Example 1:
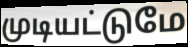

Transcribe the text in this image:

முடியட்டுமே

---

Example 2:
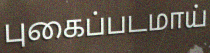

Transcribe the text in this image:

புகைப்படமாய்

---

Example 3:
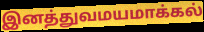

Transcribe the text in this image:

இனத்துவமயமாக்கல்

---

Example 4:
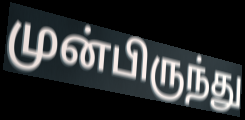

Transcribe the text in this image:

முன்பிருந்து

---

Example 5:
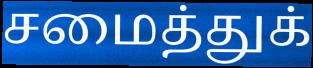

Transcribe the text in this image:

சமைத்துக்